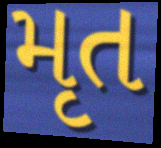
મૃત